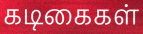
கடிகைகள்